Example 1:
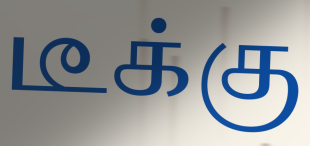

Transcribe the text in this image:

டீக்கு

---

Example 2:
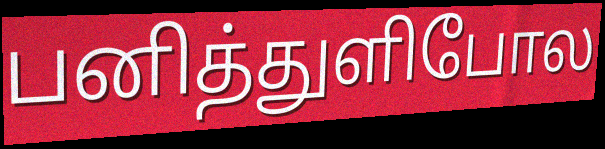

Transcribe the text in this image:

பனித்துளிபோல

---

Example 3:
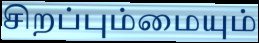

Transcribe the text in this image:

சிறப்பும்மையும்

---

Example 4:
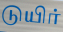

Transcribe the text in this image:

டுயிர்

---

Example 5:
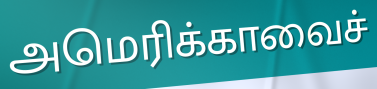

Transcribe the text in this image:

அமெரிக்காவைச்